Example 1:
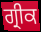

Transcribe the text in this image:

ਗ੍ਰੀਕ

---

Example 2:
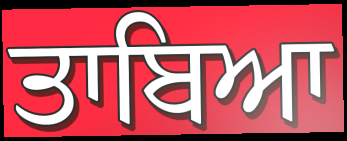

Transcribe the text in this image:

ਤਾਬਿਆ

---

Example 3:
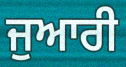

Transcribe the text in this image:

ਜੁਆਰੀ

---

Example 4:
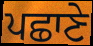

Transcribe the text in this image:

ਪਛਾਣੇ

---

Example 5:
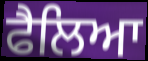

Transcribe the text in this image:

ਫੈਲਿਆ